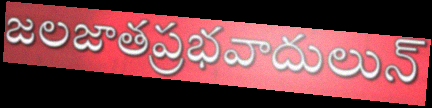
జలజాతప్రభవాదులున్